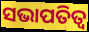
ସଭାପତିତ୍ଵ